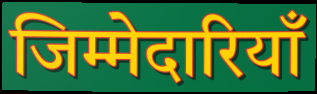
जिम्मेदारियाँ